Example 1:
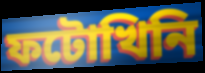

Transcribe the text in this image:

ফটোখিনি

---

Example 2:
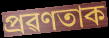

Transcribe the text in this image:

প্ৰৱণতাক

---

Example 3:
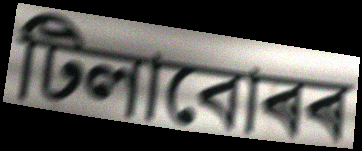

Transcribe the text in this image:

টিলাবোৰৰ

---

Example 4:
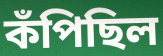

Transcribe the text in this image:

কঁপিছিল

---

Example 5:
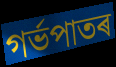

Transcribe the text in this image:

গৰ্ভপাতৰ